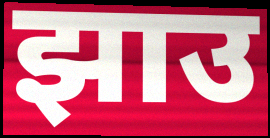
झाउ